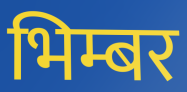
भिम्बर